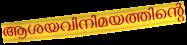
ആശയവിനിമയത്തിന്റെ